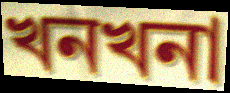
খনখনা